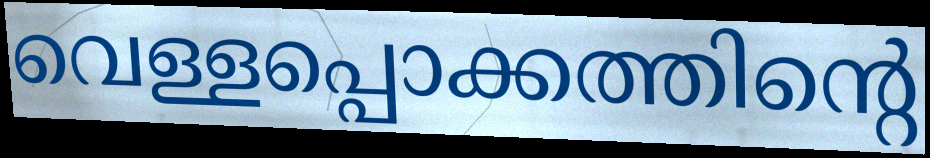
വെള്ളപ്പൊക്കത്തിന്റെ